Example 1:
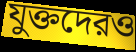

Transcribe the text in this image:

যুক্তদেরও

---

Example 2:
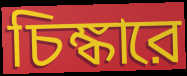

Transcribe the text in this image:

চিঙ্কারে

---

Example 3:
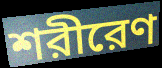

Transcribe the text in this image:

শরীরেণ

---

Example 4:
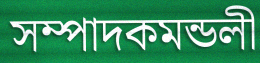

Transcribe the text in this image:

সম্পাদকমন্ডলী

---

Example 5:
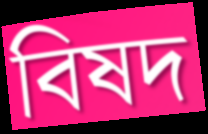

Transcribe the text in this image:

বিষদ